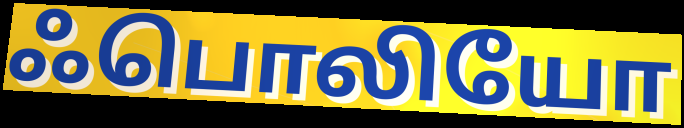
ஃபொலியோ